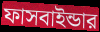
ফাসবাইন্ডার